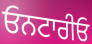
ਓਨਟਾਰੀਓ